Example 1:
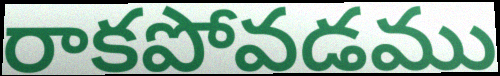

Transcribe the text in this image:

రాకపోవడము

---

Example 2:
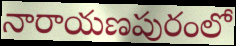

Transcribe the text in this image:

నారాయణపురంలో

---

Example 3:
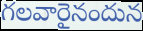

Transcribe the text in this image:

గలవారైనందున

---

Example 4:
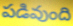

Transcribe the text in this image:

పడివుంది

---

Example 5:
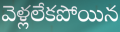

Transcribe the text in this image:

వెళ్లలేకపోయిన